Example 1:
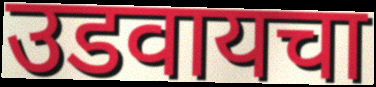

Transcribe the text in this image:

उडवायचा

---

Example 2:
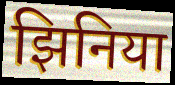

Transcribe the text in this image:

झिनिया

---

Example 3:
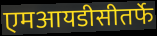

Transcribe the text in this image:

एमआयडीसीतर्फे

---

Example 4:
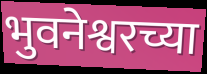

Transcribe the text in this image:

भुवनेश्वरच्या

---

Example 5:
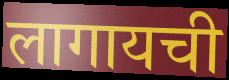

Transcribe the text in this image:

लागायची